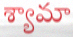
శ్యామా